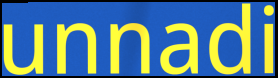
unnadi